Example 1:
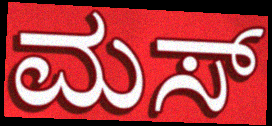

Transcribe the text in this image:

ಮಸ್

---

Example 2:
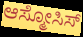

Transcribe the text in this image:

ಆಸ್ಮೋಸಿಸ್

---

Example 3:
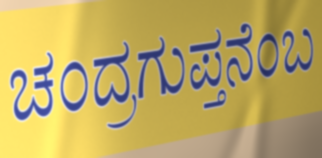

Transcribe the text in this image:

ಚಂದ್ರಗುಪ್ತನೆಂಬ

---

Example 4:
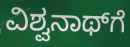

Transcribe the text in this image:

ವಿಶ್ವನಾಥ್‌ಗೆ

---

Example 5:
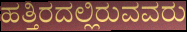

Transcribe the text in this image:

ಹತ್ತಿರದಲ್ಲಿರುವವರು